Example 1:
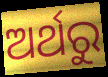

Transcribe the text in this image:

ଅର୍ଥରୁ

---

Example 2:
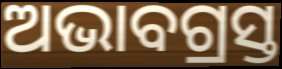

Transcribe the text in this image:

ଅଭାବଗ୍ରସ୍ତ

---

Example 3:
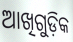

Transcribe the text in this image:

ଆଖିଗୁଡ଼ିକ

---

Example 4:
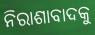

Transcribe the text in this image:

ନିରାଶାବାଦକୁ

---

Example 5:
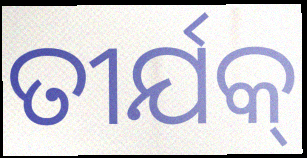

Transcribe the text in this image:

ତୀର୍ଯକ୍